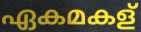
ഏകമകള്